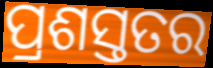
ପ୍ରଶସ୍ତତର